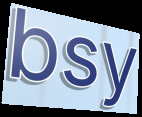
bsy